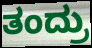
ತಂದ್ರು